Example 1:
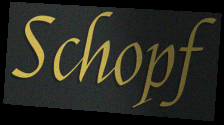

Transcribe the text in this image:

Schopf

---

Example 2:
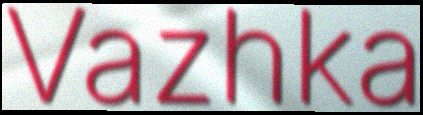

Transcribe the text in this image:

Vazhka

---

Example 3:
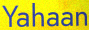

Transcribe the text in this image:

Yahaan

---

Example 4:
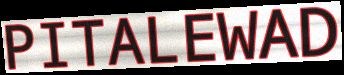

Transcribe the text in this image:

PITALEWAD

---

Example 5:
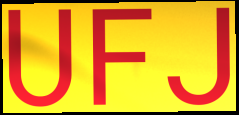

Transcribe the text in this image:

UFJ